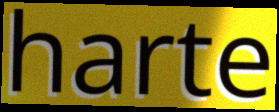
harte